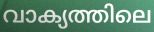
വാക്യത്തിലെ